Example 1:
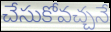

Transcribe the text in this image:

చేసుకోవచ్చనే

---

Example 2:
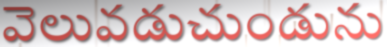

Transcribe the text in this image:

వెలువడుచుండును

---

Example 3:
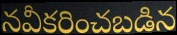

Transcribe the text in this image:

నవీకరించబడిన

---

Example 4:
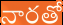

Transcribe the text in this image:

నారతో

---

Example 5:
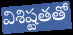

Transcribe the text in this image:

విశిష్టతతో